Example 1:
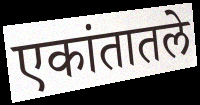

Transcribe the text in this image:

एकांतातले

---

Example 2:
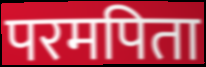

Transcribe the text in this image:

परमपिता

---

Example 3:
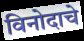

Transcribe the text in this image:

विनोदाचे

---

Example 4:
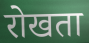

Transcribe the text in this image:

रोखता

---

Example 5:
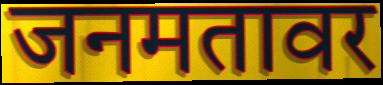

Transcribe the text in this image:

जनमतावर